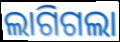
ଲାଗିଗଲା